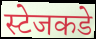
स्टेजकडे